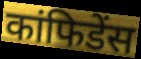
कांफिडेंस